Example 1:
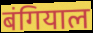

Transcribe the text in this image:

बंगियाल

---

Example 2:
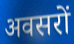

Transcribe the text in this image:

अवसरों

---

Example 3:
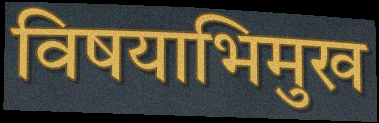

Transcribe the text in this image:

विषयाभिमुख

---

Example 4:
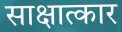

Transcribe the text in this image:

साक्षात्कार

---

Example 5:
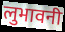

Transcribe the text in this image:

लुभावनी